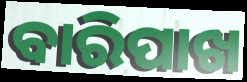
ବାରିପାଖ